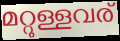
മറ്റുള്ളവര്